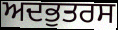
ਅਦਭੁਤਰਸ